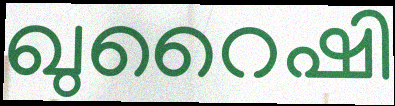
ഖുറൈഷി